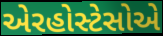
એરહોસ્ટેસોએ